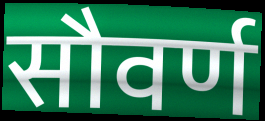
सौवर्ण